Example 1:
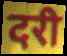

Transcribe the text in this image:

दरी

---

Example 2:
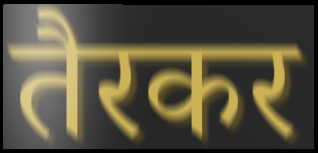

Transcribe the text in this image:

तैरकर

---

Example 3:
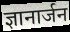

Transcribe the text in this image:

ज्ञानार्जन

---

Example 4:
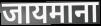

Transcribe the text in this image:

जायमाना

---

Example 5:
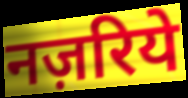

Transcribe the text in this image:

नज़रिये